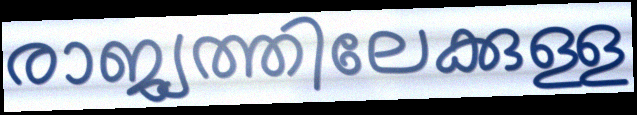
രാജ്യത്തിലേക്കുള്ള